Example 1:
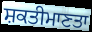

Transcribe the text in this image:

ਸ਼ਕਤੀਮਾਣਤਾ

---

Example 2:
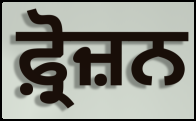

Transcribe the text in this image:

ਫ਼੍ਰੋਜ਼ਨ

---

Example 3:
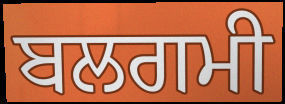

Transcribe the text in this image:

ਬਲਗਮੀ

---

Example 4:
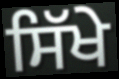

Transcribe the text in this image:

ਸਿੱਖੇ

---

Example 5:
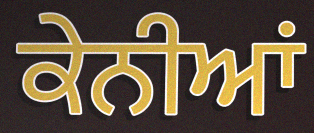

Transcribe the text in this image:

ਕੇਨੀਆਂ